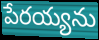
పేరయ్యను